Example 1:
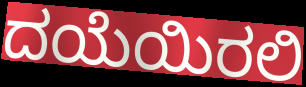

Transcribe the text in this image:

ದಯೆಯಿರಲಿ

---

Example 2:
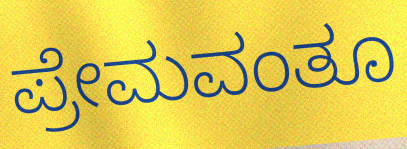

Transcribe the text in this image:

ಪ್ರೇಮವಂತೂ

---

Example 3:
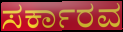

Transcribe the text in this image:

ಸರ್ಕಾರವ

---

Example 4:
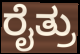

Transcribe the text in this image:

ರೈತ್ರು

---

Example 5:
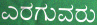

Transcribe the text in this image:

ಎರಗುವರು